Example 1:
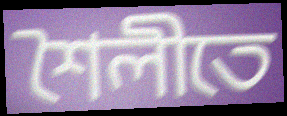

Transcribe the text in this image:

শৈলীতে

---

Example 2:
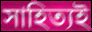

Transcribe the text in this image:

সাহিত্যই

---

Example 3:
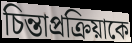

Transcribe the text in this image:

চিন্তাপ্রক্রিয়াকে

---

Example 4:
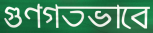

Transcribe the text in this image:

গুণগতভাবে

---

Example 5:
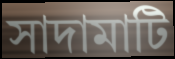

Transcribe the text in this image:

সাদামাটি